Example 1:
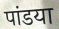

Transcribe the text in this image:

पांडया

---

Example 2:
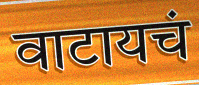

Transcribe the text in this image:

वाटायचं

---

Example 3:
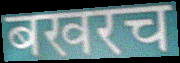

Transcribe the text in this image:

बखरच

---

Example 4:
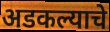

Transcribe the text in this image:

अडकल्याचे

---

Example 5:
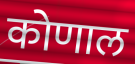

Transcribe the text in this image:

कोणाल